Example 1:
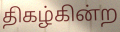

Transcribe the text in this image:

திகழ்கின்ற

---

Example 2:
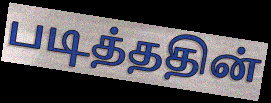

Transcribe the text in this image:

படித்ததின்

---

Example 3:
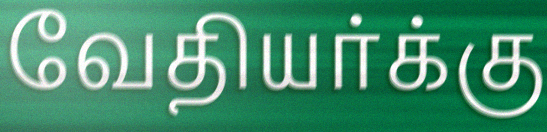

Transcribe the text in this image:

வேதியர்க்கு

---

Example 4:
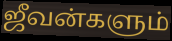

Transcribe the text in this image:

ஜீவன்களும்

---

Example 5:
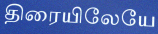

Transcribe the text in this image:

திரையிலேயே